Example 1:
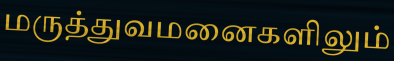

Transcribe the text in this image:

மருத்துவமனைகளிலும்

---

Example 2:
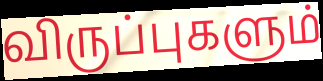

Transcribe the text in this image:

விருப்புகளும்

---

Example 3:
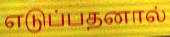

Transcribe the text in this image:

எடுப்பதனால்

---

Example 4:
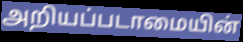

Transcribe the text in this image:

அறியப்படாமையின்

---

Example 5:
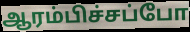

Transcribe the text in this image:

ஆரம்பிச்சப்போ